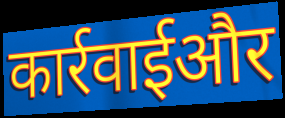
कार्रवाईऔर